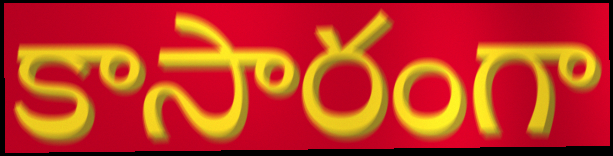
కాసారంగా